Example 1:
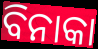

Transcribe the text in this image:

ବିନାକା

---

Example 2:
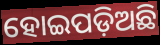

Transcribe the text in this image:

ହୋଇପଡ଼ିଅଛି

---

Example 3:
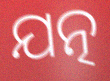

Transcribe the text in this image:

ଯତ୍ନ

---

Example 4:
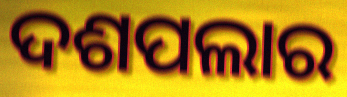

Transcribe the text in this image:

ଦଶପଲାର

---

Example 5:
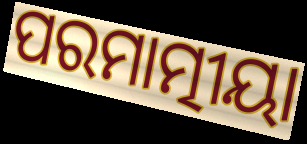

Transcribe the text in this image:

ପରମାତ୍ମୀୟା